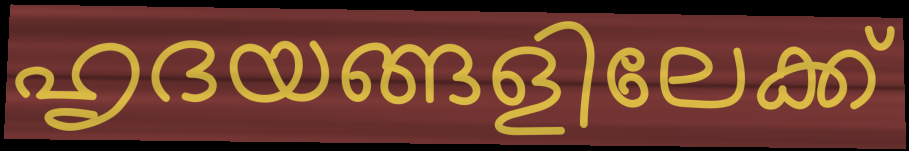
ഹൃദയങ്ങളിലേക്ക്